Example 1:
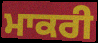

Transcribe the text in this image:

ਮਾਕਰੀ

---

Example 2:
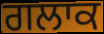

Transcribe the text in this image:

ਗਲਾਕ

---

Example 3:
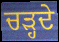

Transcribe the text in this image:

ਚਡ਼੍ਹਦੇ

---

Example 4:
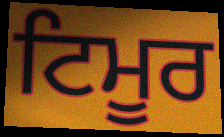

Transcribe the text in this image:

ਟਿਮੂਰ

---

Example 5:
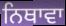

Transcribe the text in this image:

ਨਿਥਾਵਾ